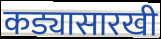
कड्यासारखी